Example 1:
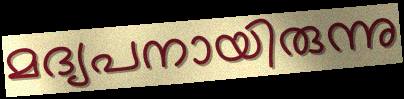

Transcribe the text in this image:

മദ്യപനായിരുന്നു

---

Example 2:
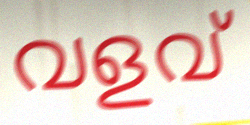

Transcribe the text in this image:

വളവ്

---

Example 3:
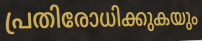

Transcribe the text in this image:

പ്രതിരോധിക്കുകയും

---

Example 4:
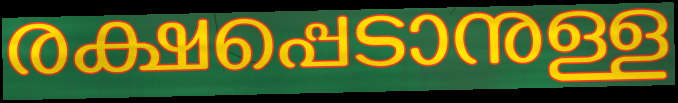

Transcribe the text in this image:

രക്ഷപ്പെടാനുള്ള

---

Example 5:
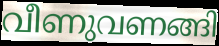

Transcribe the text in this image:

വീണുവണങ്ങി